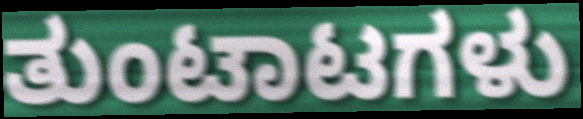
ತುಂಟಾಟಗಳು